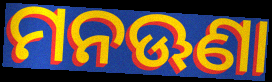
ମନଊଣା